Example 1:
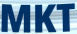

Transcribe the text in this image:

MKT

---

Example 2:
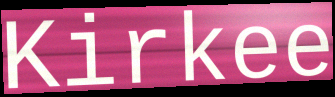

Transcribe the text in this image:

Kirkee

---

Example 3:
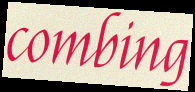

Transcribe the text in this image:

combing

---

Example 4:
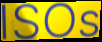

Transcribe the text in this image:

ISOs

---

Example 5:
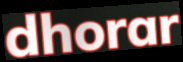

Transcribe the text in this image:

dhorar